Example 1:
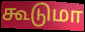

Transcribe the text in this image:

கூடுமா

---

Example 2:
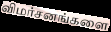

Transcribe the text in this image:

விமர்சனங்களை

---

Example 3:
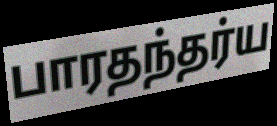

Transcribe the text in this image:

பாரதந்தர்ய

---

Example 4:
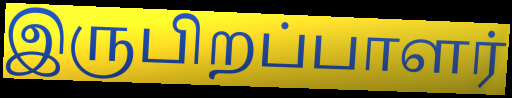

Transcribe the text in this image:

இருபிறப்பாளர்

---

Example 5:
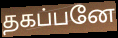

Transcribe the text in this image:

தகப்பனே